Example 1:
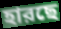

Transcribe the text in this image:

হারছে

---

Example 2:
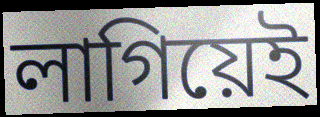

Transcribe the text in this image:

লাগিয়েই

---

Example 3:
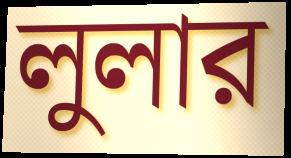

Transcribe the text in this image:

লুলার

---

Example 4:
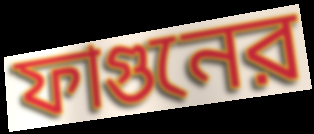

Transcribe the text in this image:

ফাগুনের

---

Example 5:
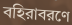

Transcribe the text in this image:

বহিরাবরণে